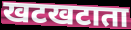
खटखटाता